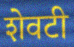
शेवटी